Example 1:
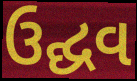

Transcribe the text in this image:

ઉદ્ઘવ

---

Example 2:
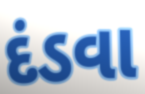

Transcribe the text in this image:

દંડવા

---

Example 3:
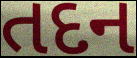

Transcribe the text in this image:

તદન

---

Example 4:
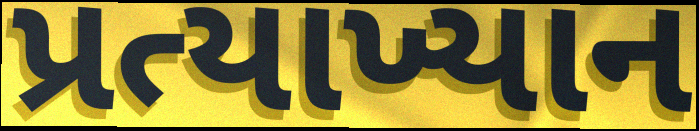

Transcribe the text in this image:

પ્રત્યાખ્યાન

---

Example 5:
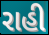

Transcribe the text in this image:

રાહી